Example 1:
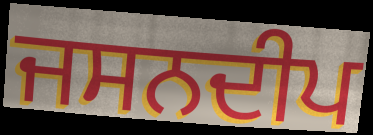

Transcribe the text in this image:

ਜਸਨਦੀਪ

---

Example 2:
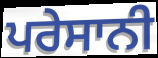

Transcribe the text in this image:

ਪਰੇਸਾਨੀ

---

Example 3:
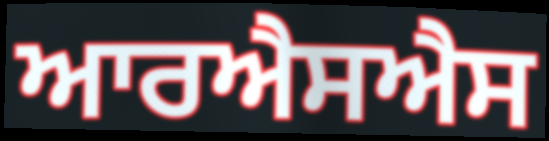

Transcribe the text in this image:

ਆਰਐਸਐਸ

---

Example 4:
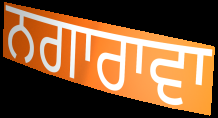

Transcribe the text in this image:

ਨਗਾਰਾਵਾ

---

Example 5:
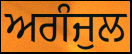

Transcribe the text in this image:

ਅਗੰਜੁਲ